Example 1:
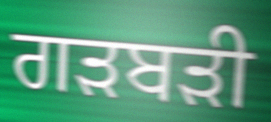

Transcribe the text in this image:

ਗੜਬੜੀ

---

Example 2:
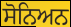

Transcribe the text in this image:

ਸੋਨਿਅਨ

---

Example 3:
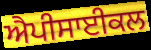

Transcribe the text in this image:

ਐਪੀਸਾਈਕਲ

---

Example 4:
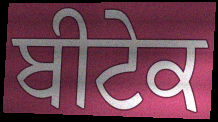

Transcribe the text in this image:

ਬੀਟੇਕ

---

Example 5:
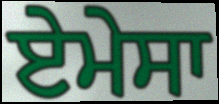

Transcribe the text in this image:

ਏਮੇਸਾ